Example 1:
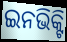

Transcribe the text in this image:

ଇନଭିକ୍ଟି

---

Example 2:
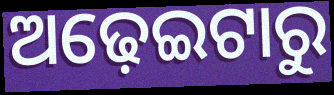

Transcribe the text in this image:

ଅଢ଼େଇଟାରୁ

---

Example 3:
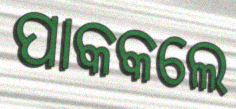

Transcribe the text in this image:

ପାକକଲେ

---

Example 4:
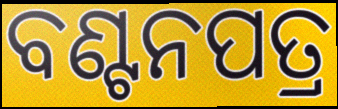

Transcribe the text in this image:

ବଣ୍ଟନପତ୍ର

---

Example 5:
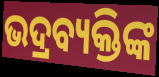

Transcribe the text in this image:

ଭଦ୍ରବ୍ୟକ୍ତିଙ୍କ